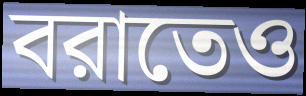
বরাতেও